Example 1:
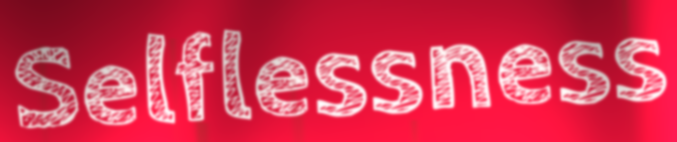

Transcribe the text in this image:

Selflessness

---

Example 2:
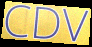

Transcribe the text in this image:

CDV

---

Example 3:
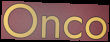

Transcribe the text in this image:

Onco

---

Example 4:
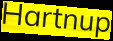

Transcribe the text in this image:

Hartnup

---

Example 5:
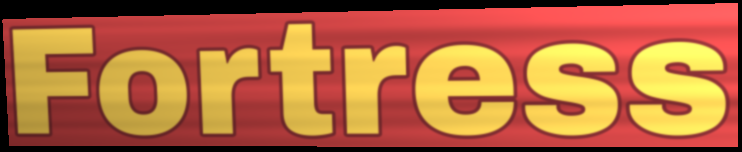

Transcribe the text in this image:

Fortress